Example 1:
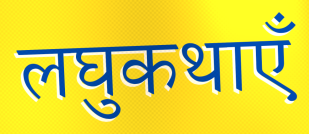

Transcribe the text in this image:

लघुकथाएँ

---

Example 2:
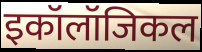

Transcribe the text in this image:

इकॉलॉजिकल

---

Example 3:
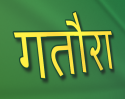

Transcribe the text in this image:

गतौरा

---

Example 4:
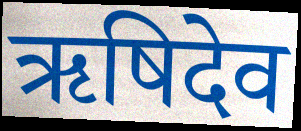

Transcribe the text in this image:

ऋषिदेव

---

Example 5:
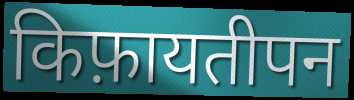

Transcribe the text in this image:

किफ़ायतीपन